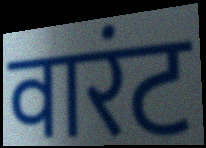
वारंट